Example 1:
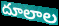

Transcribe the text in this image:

దూలాల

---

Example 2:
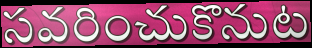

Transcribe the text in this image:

సవరించుకొనుట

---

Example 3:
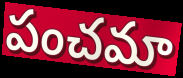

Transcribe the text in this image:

పంచమా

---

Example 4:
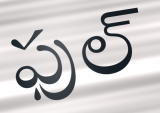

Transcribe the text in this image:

ఫుల్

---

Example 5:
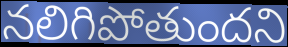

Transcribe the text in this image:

నలిగిపోతుందని